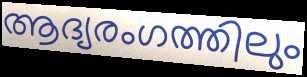
ആദ്യരംഗത്തിലും